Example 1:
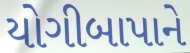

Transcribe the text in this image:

યોગીબાપાને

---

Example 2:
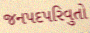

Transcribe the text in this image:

જનપદપરિવુતો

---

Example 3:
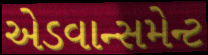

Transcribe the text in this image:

એડવાન્સમેન્ટ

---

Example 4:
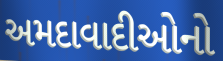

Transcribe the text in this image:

અમદાવાદીઓનો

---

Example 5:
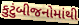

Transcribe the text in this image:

કુટુંબીજનોમાંથી